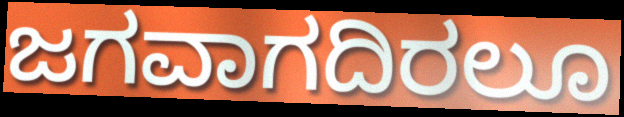
ಜಗವಾಗದಿರಲೂ